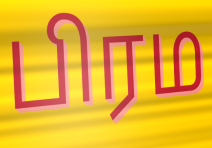
பிரம